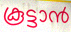
കൂട്ടാൻ